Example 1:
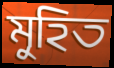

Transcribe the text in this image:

মুহিত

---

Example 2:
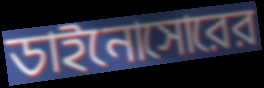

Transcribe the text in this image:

ডাইনোসোরের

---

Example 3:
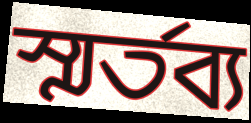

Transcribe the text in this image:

স্মর্তব্য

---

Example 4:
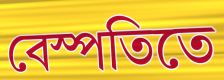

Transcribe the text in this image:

বেস্পতিতে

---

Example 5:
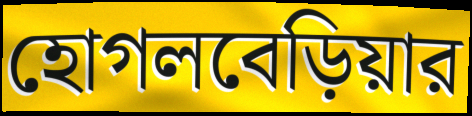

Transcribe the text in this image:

হোগলবেড়িয়ার